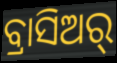
ବ୍ରାସିଅର୍